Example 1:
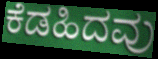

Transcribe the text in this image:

ಕೆಡಹಿದವು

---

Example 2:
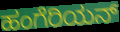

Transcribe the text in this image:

ಹಂಗೆರಿಯನ್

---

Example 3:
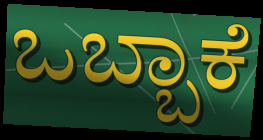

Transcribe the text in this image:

ಒಬ್ಬಾಕೆ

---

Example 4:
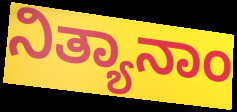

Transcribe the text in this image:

ನಿತ್ಯಾನಾಂ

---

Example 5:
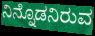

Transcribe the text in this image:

ನಿನ್ನೊಡನಿರುವ